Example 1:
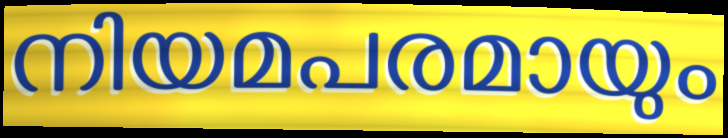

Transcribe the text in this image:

നിയമപരമായും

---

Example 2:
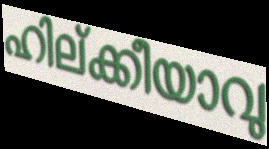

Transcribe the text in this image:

ഹില്ക്കീയാവു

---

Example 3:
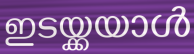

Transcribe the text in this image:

ഇടയ്ക്കയാൾ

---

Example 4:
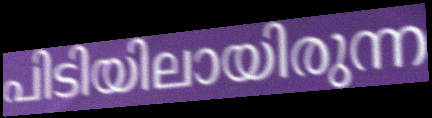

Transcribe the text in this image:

പിടിയിലായിരുന്ന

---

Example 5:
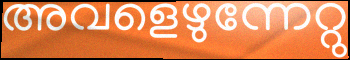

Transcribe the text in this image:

അവളെഴുന്നേറ്റു